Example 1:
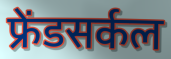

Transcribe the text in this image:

फ्रेंडसर्कल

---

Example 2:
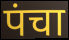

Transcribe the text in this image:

पंचा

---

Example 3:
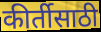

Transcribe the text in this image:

कीर्तीसाठी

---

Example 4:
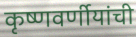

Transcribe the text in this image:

कृष्णवर्णीयांची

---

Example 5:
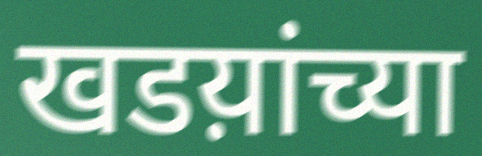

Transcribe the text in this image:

खडय़ांच्या